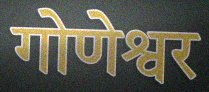
गोणेश्वर